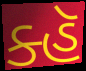
ક્હૅ